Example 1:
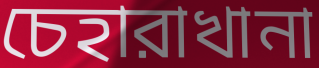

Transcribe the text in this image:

চেহারাখানা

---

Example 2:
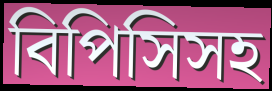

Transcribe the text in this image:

বিপিসিসহ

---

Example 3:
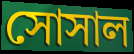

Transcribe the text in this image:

সোসাল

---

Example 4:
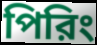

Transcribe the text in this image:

পিরিং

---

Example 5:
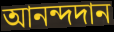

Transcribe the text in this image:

আনন্দদান